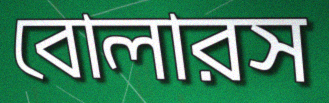
বোলারস